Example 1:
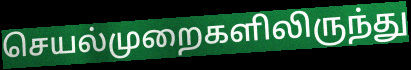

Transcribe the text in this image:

செயல்முறைகளிலிருந்து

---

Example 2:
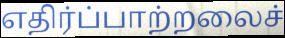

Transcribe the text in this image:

எதிர்ப்பாற்றலைச்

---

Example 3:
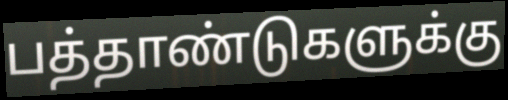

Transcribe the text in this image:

பத்தாண்டுகளுக்கு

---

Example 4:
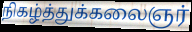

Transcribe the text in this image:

நிகழ்த்துக்கலைஞர்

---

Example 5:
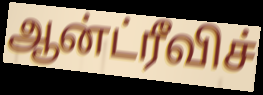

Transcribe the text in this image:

ஆன்ட்ரீவிச்